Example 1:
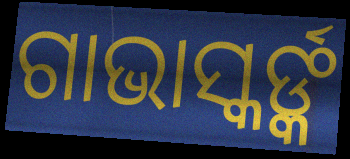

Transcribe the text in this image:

ଗାଭାସ୍କର୍ଙ୍କ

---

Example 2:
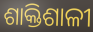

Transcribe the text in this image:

ଶାକ୍ତିଶାଳୀ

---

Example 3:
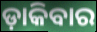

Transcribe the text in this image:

ଡ଼ାକିବାର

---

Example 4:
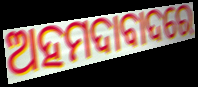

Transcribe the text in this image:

ଅହମଦାବାଦରେ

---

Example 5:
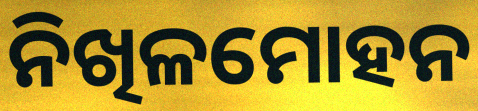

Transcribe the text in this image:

ନିଖିଳମୋହନ